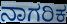
ನಾಗರಿಕ